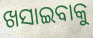
ଖସାଇବାକୁ